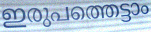
ഇരുപത്തെട്ടാം